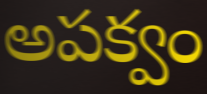
అపక్వం